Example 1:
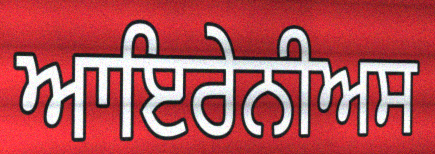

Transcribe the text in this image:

ਆਇਰੇਨੀਅਸ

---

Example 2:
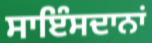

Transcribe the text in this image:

ਸਾਇੰਸਦਾਨਾਂ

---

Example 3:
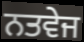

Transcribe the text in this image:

ਨਤਵੇਜ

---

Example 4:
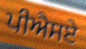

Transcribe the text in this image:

ਪੀਐਸਏ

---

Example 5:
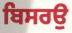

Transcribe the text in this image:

ਬਿਸਰਉ